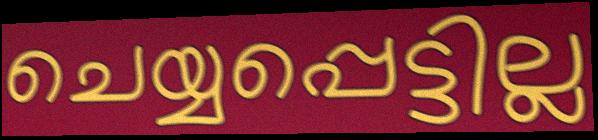
ചെയ്യപ്പെട്ടില്ല